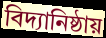
বিদ্যানিষ্ঠায়